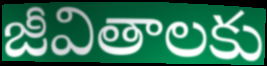
జీవితాలకు